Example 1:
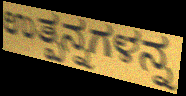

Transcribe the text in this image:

ಉತ್ಪನ್ನಗಳನ್ನ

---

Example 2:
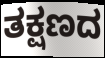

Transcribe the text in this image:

ತಕ್ಷಣದ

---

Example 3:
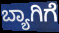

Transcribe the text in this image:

ಬ್ಯಾಗಿಗೆ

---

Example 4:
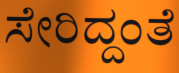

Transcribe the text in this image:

ಸೇರಿದ್ದಂತೆ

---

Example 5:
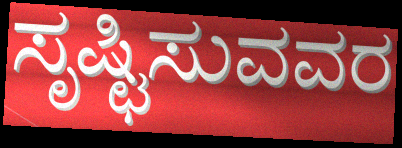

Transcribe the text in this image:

ಸೃಷ್ಟಿಸುವವರ